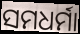
ସମଧର୍ମା